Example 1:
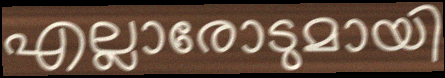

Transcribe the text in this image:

എല്ലാരോടുമായി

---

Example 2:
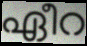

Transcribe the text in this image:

ഏീറ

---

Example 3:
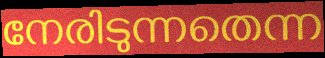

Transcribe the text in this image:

നേരിടുന്നതെന്ന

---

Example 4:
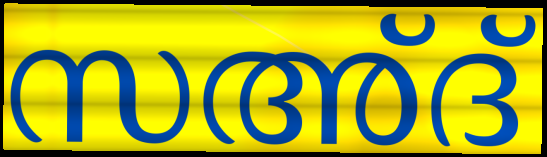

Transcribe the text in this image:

സഅ്ദ്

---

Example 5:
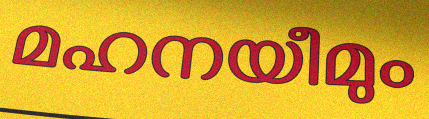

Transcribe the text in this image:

മഹനയീമും